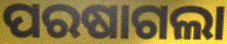
ପରଷାଗଲା